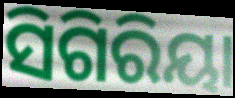
ସିଗିରିୟା